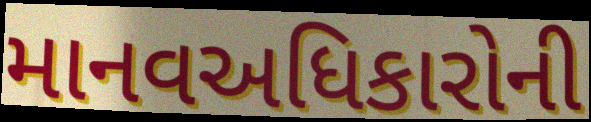
માનવઅધિકારોની